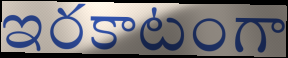
ఇరకాటంగా